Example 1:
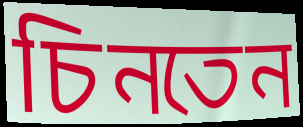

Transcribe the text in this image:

চিনতেন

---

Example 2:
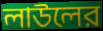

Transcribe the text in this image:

লাউলের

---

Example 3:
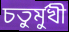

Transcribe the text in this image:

চতুর্মুখী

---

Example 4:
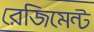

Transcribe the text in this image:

রেজিমেন্ট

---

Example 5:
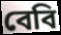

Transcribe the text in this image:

বেবি